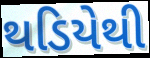
થડિયેથી